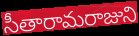
సీతారామరాజుని